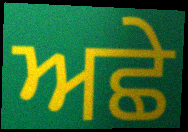
ਅਛੇ